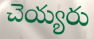
చెయ్యరు